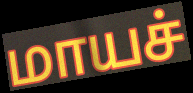
மாயச்